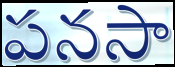
పనసా